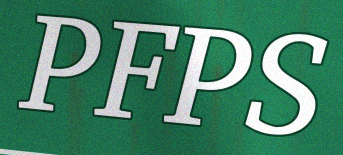
PFPS